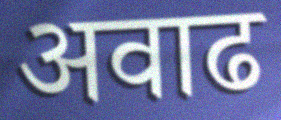
अवाढ